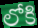
లోకి